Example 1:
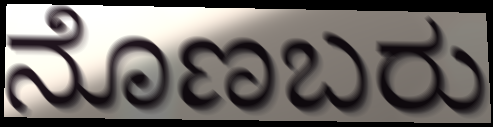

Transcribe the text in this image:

ನೊಣಬರು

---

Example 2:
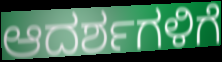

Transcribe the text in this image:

ಆದರ್ಶಗಳಿಗೆ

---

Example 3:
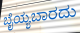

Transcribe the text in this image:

ಬೈಯ್ಯಬಾರದು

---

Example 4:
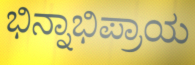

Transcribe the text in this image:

ಭಿನ್ನಾಭಿಪ್ರಾಯ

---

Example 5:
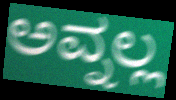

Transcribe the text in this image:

ಅವ್ನಲ್ಲ